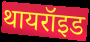
थायरॉइड